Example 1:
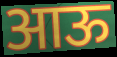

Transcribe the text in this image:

आऊ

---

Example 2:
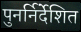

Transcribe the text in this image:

पुनर्निर्देशित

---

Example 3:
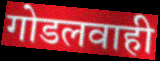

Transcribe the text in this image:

गोडलवाही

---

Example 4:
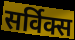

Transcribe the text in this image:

सर्विक्स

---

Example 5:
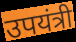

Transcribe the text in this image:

उपयंत्री